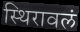
स्थिरावलं